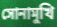
সোনামুখি